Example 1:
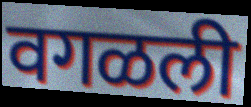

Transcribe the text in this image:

वगळली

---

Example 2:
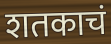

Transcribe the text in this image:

शतकाचं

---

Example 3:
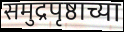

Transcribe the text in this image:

समुद्रपृष्ठाच्या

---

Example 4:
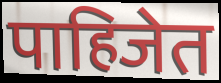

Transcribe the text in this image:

पाहिजेत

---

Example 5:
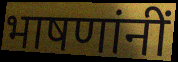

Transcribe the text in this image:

भाषणांनीं